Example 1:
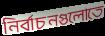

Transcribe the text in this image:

নির্বাচনগুলোতে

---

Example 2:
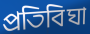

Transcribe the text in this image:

প্রতিবিঘা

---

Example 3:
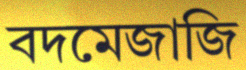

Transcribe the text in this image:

বদমেজাজি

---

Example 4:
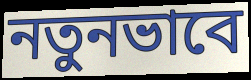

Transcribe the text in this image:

নতুনভাবে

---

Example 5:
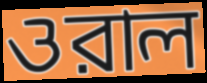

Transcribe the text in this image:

ওরাল